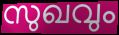
സുഖവും